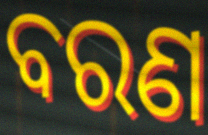
ବରଣ